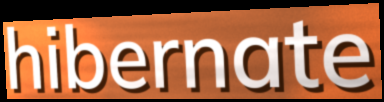
hibernate